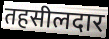
तहसीलदार